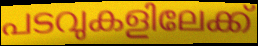
പടവുകളിലേക്ക്